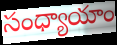
సంధ్యాయాం